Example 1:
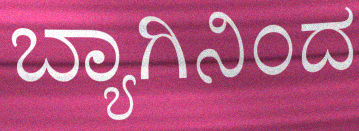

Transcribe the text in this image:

ಬ್ಯಾಗಿನಿಂದ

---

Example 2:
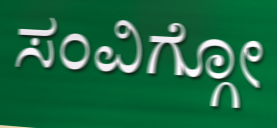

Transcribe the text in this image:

ಸಂವಿಗ್ಗೋ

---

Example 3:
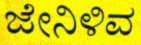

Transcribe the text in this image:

ಜೇನಿಳಿವ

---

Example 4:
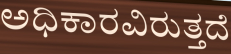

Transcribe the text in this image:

ಅಧಿಕಾರವಿರುತ್ತದೆ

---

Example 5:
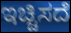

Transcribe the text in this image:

ಇಚ್ಚಿಸದೆ